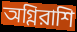
অগ্নিরাশি